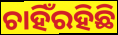
ଚାହିଁରହିଛି